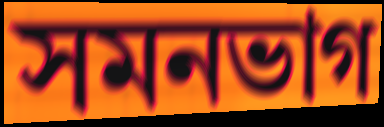
সমনভাগ